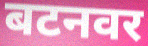
बटनवर